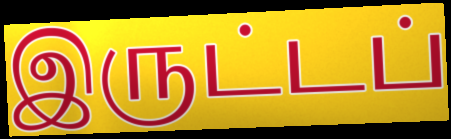
இருட்டப்